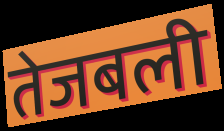
तेजबली